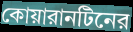
কোয়ারানটিনের